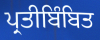
ਪ੍ਰਤੀਬਿੰਬਿਤ